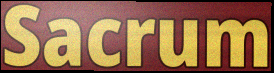
Sacrum